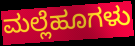
ಮಲ್ಲೆಹೂಗಳು